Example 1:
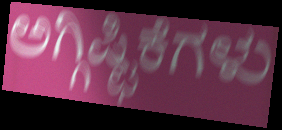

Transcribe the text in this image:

ಅಗ್ಗಿಷ್ಟಿಕೆಗಳು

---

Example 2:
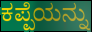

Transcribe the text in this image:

ಕಪ್ಪೆಯನ್ನು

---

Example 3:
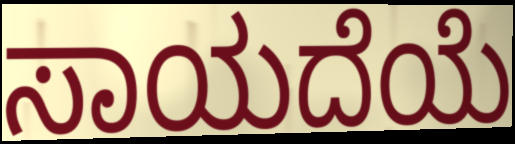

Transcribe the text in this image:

ಸಾಯದೆಯೆ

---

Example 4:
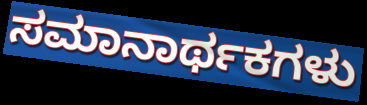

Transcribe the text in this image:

ಸಮಾನಾರ್ಥಕಗಳು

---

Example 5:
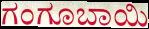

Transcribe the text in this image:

ಗಂಗೂಬಾಯಿ